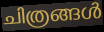
ചിത്രങ്ങൾ